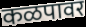
कळपावर